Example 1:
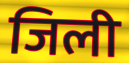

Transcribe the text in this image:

जिली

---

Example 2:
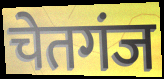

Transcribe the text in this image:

चेतगंज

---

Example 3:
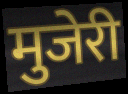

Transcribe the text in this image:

मुजेरी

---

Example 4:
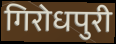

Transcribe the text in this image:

गिरोधपुरी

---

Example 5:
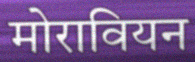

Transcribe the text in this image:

मोरावियन